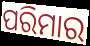
ପରିମାର